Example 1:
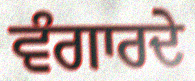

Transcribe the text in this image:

ਵੰਗਾਰਦੇ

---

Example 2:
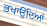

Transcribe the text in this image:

ਭਖਾਉਂਦਿਆਂ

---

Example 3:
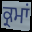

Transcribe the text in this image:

ਕ੍ਰਮਾਂ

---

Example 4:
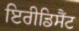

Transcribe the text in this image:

ਇਰੀਡਿਸੈਂਟ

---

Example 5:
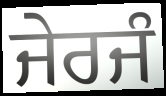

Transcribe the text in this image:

ਜੇਰਜੰ